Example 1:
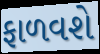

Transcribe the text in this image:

ફાળવશે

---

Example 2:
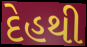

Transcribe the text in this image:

દેહથી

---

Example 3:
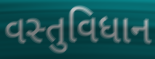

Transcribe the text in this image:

વસ્તુવિધાન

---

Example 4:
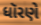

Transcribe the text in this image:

ધૉરણે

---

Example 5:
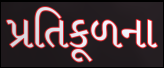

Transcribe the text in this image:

પ્રતિકૂળના